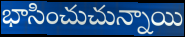
భాసించుచున్నాయి